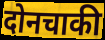
दोनचाकी